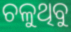
ଚଳୁଥିବୁ